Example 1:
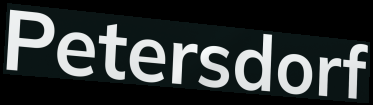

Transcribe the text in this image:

Petersdorf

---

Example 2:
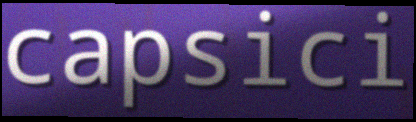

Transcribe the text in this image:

capsici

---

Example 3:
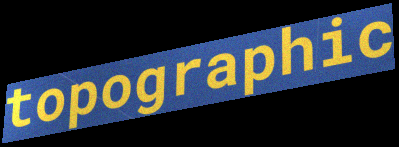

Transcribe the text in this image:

topographic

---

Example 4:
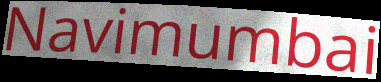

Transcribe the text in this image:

Navimumbai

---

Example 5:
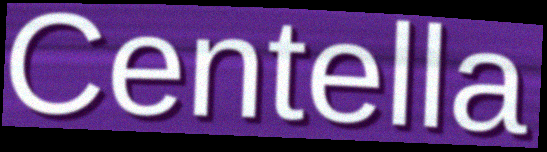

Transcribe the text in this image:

Centella